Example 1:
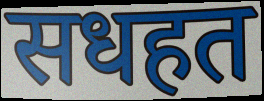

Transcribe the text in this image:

सधहत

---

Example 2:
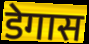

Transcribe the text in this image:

डेगास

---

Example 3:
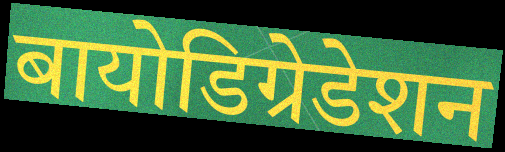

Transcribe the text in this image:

बायोडिग्रेडेशन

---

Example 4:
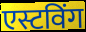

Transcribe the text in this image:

एस्टविंग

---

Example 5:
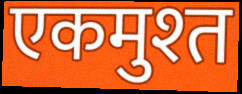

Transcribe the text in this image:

एकमुश्‍त